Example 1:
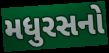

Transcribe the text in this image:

મધુરસનો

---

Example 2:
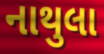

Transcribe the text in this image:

નાથુલા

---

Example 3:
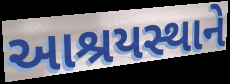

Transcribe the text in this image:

આશ્રયસ્થાને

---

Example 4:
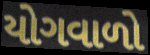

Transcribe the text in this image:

યોગવાળો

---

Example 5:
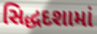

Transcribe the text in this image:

સિદ્ધદશામાં